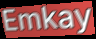
Emkay